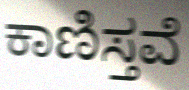
ಕಾಣಿಸ್ತವೆ